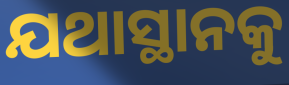
ଯଥାସ୍ଥାନକୁ